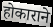
होकाराने